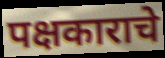
पक्षकाराचे